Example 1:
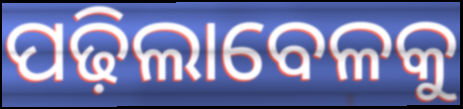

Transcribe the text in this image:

ପଢ଼ିଲାବେଳକୁ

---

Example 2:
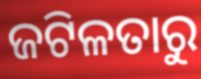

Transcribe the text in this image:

ଜଟିଳତାରୁ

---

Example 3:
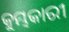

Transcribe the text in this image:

କୁମ୍ଭକାରୀ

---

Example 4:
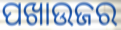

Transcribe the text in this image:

ପଖାଉଜର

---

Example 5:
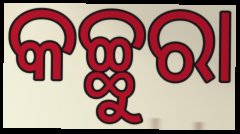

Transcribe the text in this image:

କଚ୍ଛୁରା